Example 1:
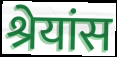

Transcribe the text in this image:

श्रेयांस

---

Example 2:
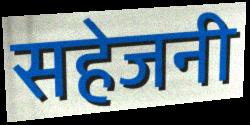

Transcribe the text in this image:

सहेजनी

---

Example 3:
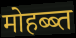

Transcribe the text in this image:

मोहब्ब्त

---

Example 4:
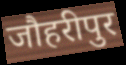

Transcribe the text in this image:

जौहरीपुर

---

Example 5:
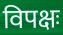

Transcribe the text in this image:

विपक्षः